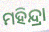
ମହିନ୍ଦ୍ରା